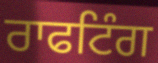
ਰਾਫਟਿੰਗ